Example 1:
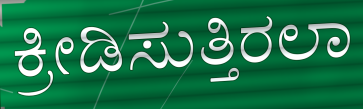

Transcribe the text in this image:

ಕ್ರೀಡಿಸುತ್ತಿರಲಾ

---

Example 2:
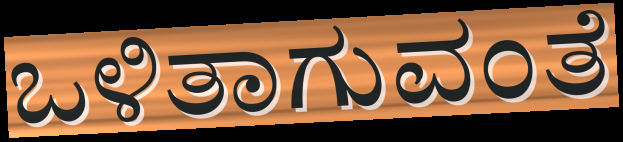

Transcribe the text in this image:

ಒಳಿತಾಗುವಂತೆ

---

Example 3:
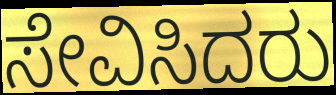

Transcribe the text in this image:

ಸೇವಿಸಿದರು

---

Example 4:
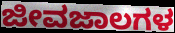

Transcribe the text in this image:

ಜೀವಜಾಲಗಳ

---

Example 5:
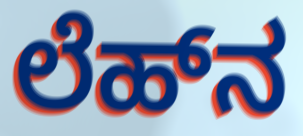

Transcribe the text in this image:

ಲೆಹ್‌ನ